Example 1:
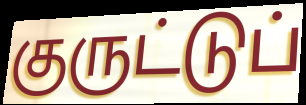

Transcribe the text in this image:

குருட்டுப்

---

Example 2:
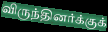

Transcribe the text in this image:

விருந்தினர்க்குக்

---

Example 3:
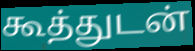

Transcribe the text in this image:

கூத்துடன்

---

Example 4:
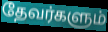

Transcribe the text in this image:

தேவர்களும்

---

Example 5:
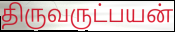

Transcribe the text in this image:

திருவருட்பயன்